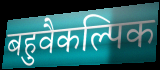
बहुवैकल्पिक